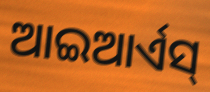
ଆଇଆର୍ଏସ୍